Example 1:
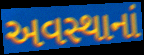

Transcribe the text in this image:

અવસ્થાનાં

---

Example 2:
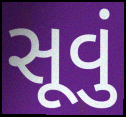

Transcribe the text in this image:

સૂવું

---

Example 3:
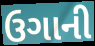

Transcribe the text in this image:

ઉગાની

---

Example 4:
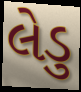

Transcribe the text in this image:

લેડુ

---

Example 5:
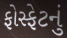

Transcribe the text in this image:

ફોસ્ફેટનું